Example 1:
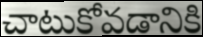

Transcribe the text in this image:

చాటుకోవడానికి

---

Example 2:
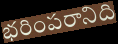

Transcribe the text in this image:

భరింపరానిది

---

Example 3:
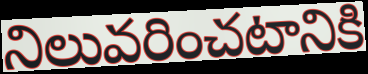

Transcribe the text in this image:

నిలువరించటానికి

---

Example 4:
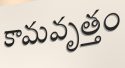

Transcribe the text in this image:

కామవృత్తం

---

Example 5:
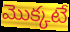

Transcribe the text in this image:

మొక్కటే